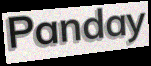
Panday